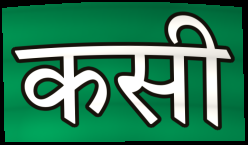
कसी